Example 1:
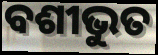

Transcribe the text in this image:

ବଶୀଭୁତ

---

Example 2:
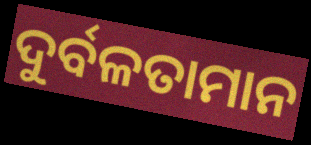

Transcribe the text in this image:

ଦୁର୍ବଳତାମାନ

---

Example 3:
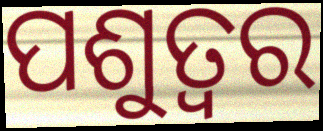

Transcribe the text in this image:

ପଶୁତ୍ୱର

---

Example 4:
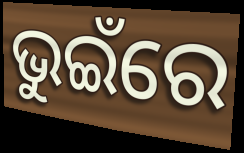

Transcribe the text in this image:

ଭୁଇଁରେ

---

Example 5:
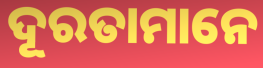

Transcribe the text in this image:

ଦୂରତାମାନେ